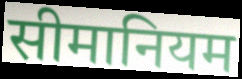
सीमानियम